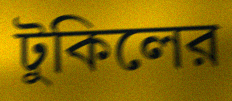
টুকিলের